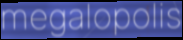
megalopolis